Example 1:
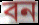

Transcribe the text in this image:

বন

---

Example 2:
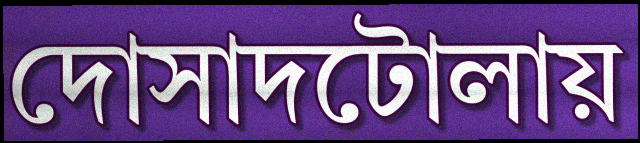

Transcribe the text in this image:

দোসাদটোলায়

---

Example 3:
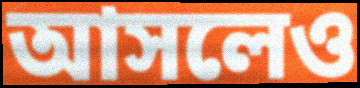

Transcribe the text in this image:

আসলেও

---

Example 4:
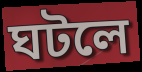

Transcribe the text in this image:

ঘটলে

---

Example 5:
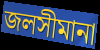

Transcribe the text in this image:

জলসীমানা